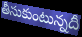
తీసుకుంటున్నదీ